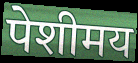
पेशीमय